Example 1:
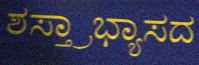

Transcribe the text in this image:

ಶಸ್ತ್ರಾಭ್ಯಾಸದ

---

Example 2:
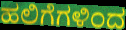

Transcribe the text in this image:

ಹಲಿಗೆಗಳಿಂದ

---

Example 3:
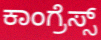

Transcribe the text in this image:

ಕಾಂಗ್ರೆಸ್ಸ್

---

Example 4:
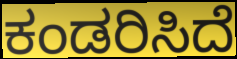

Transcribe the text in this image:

ಕಂಡರಿಸಿದೆ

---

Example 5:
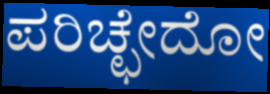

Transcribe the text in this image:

ಪರಿಚ್ಛೇದೋ